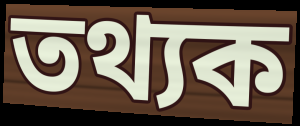
তথ্যক